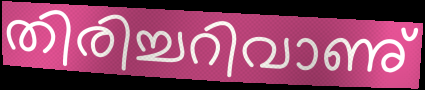
തിരിച്ചറിവാണു്